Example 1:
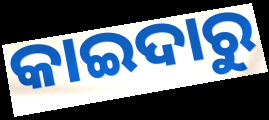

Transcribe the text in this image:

କାଇଦାରୁ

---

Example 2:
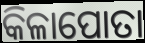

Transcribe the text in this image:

କିଳାପୋତା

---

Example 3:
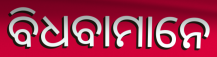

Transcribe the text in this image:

ବିଧବାମାନେ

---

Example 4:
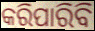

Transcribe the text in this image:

କରିପାରିବି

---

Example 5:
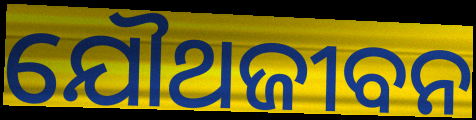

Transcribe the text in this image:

ଯୌଥଜୀବନ